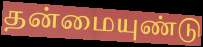
தன்மையுண்டு